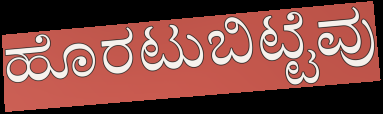
ಹೊರಟುಬಿಟ್ಟೆವು